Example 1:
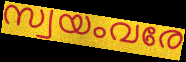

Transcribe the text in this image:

സ്വയംവരേ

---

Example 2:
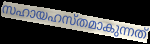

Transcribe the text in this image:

സഹായഹസ്തമാകുന്നത്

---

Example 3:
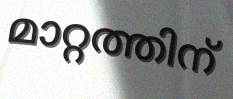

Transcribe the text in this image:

മാറ്റത്തിന്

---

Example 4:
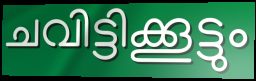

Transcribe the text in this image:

ചവിട്ടിക്കൂട്ടും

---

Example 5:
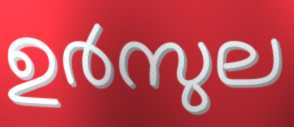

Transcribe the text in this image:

ഉർസുല